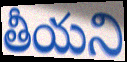
తీయని